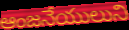
ఆంజనేయులుని